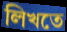
লিখতে